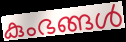
കുംഭങ്ങൾ